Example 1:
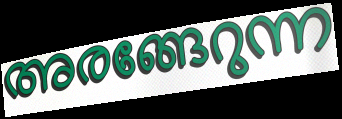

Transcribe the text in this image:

അരങ്ങേറുന്ന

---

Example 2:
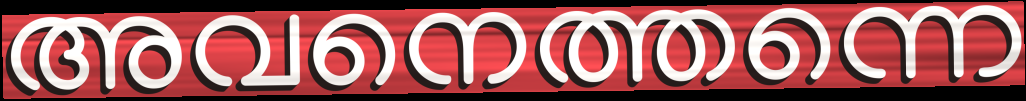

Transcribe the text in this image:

അവനെത്തന്നെ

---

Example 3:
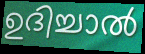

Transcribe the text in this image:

ഉദിച്ചാൽ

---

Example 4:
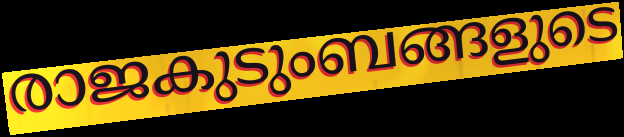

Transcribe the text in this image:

രാജകുടുംബങ്ങളുടെ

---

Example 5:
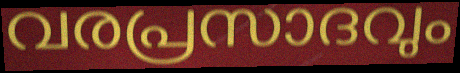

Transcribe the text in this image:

വരപ്രസാദവും